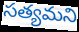
సత్యమని